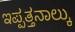
ಇಪ್ಪತ್ತನಾಲ್ಕು